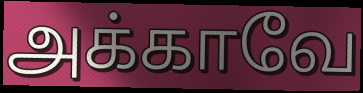
அக்காவே